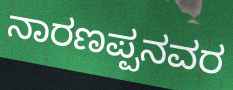
ನಾರಣಪ್ಪನವರ